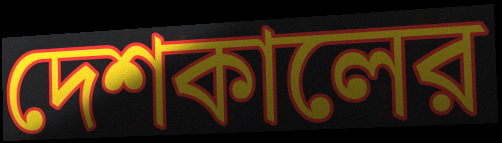
দেশকালের